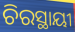
ଚିରସ୍ଥାୟୀ